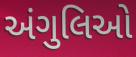
અંગુલિઓ